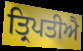
ਤ੍ਰਿਪਤੀਐ